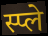
स्प्ले